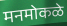
मनमोकळे